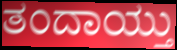
ತಂದಾಯ್ತು